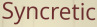
Syncretic